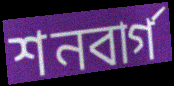
শনবার্গ